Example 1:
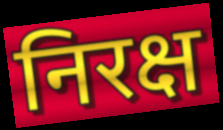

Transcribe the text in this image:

निरक्ष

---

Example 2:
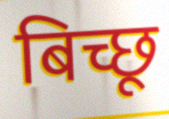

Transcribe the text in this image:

बिच्छू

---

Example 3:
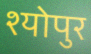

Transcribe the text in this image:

श्योपुर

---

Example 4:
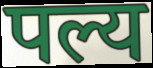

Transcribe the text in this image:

पल्य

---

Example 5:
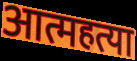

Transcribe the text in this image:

आत्‍महत्‍या